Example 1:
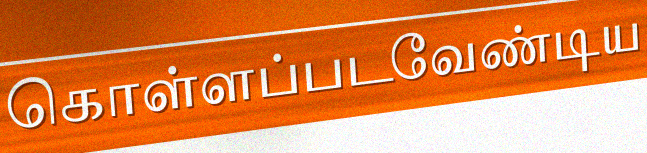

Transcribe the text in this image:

கொள்ளப்படவேண்டிய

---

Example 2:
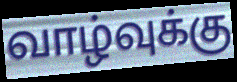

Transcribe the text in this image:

வாழ்வுக்கு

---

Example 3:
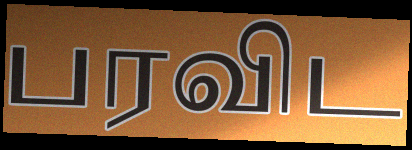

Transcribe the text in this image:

பரவிட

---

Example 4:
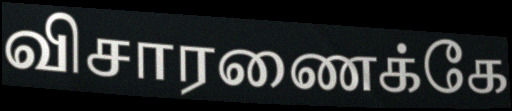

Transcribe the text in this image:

விசாரணைக்கே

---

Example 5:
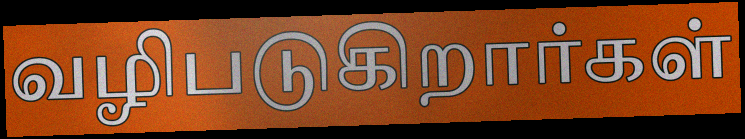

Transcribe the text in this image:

வழிபடுகிறார்கள்